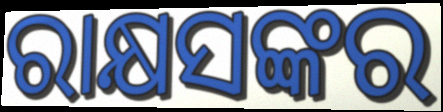
ରାକ୍ଷସଙ୍କର